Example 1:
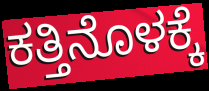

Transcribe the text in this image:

ಕತ್ತಿನೊಳಕ್ಕೆ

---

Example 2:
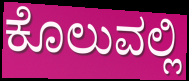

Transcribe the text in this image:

ಕೊಲುವಲ್ಲಿ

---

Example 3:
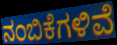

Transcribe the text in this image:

ನಂಬಿಕೆಗಳಿವೆ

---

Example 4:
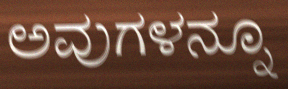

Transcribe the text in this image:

ಅವುಗಳನ್ನೂ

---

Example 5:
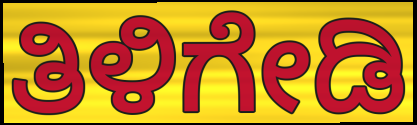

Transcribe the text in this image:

ತಿಳಿಗೇಡಿ